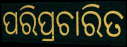
ପରିପ୍ରଚାରିତ